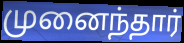
முனைந்தார்